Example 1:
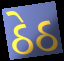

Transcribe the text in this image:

ઠેઠ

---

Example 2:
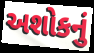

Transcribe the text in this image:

અશોકનું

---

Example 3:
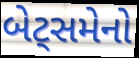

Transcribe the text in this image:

બેટ્સમેનો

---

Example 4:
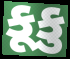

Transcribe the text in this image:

કૂકુ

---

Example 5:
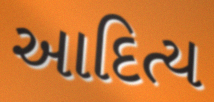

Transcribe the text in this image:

આદિત્ય